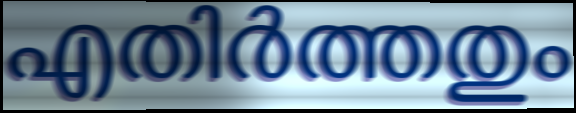
എതിർത്തതും